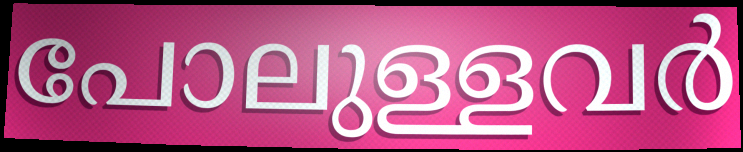
പോലുള്ളവർ